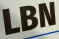
LBN